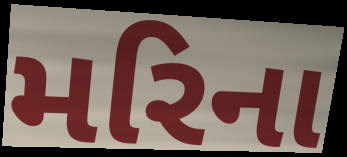
મરિના